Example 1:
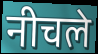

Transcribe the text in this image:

नीचले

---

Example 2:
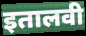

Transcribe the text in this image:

इतालवी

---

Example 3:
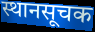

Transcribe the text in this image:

स्थानसूचक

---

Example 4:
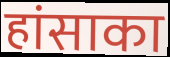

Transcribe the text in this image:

हांसाका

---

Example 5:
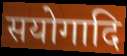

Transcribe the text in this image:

सयोगादि